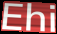
Ehi